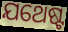
ଯଥେଷ୍ଟ